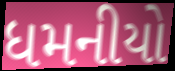
ધમનીયો